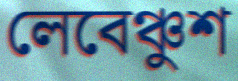
লেবেঞ্চুশ